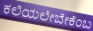
ಕಲಿಯಲೇಬೇಕೆಂಬ